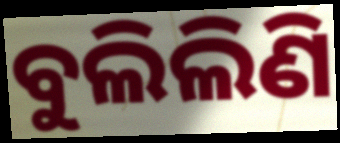
ବୁଲିଲିଣି